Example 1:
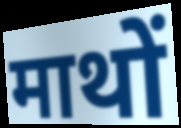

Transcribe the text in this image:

माथों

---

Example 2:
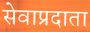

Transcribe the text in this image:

सेवाप्रदाता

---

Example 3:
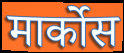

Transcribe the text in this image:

मार्कोस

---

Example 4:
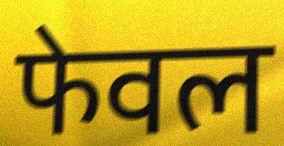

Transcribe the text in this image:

फेवल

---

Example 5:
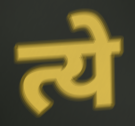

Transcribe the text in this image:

त्ये